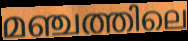
മഞ്ചത്തിലെ